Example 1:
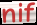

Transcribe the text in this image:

nif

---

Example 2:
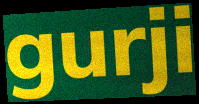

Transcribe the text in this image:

gurji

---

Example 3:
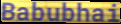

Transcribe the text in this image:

Babubhai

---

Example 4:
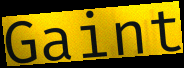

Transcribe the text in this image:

Gaint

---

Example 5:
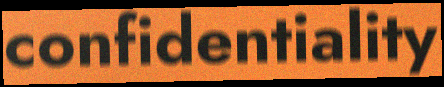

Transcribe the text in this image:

confidentiality